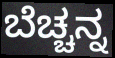
ಬೆಚ್ಚನ್ನ